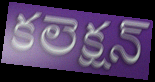
కలెక్షన్